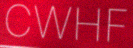
CWHF